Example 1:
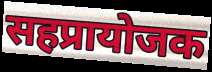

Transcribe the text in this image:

सहप्रायोजक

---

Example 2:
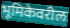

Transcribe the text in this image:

भूमिकेवरील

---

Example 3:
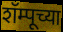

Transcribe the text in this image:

शॅम्पूच्या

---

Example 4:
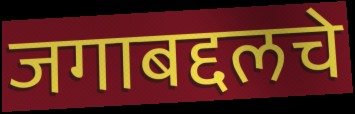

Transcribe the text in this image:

जगाबद्दलचे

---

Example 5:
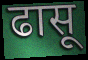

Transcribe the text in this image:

ढासू